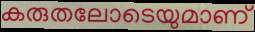
കരുതലോടെയുമാണ്